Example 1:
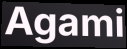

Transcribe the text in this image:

Agami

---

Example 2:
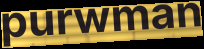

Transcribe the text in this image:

purwman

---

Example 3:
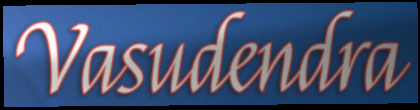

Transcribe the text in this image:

Vasudendra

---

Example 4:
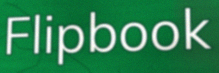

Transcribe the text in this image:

Flipbook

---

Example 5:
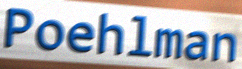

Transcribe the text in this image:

Poehlman